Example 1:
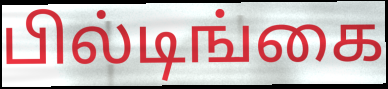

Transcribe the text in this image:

பில்டிங்கை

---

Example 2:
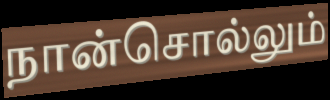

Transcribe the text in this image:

நான்சொல்லும்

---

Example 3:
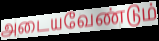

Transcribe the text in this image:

அடையவேண்டும்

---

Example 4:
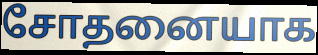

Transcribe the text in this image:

சோதனையாக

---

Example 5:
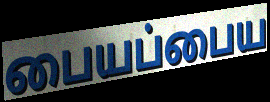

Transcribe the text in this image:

பையப்பைய